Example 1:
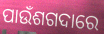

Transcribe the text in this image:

ପାଉଁଶଗଦାରେ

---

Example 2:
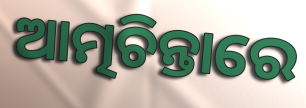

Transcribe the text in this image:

ଆତ୍ମଚିନ୍ତାରେ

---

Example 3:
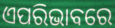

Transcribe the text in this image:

ଏପରିଭାବରେ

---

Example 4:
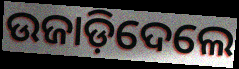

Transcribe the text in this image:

ଉଜାଡ଼ିଦେଲେ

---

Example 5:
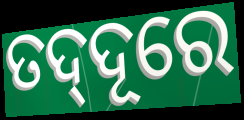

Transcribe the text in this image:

ତଦ୍‍ଦୂରେ